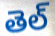
తెల్